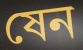
ষেন